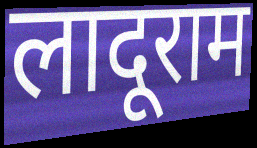
लादूराम